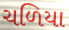
ચળિયા